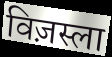
विज़स्ला